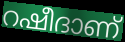
റഷീദാണ്